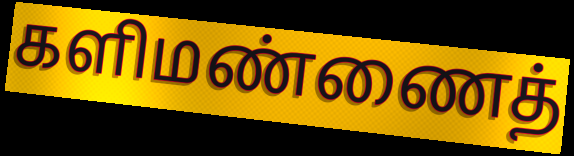
களிமண்ணைத்